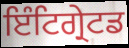
ਇੰਟਿਗ੍ਰੇਟਡ